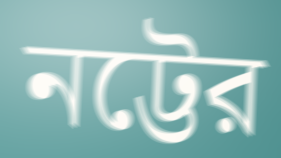
নট্টের